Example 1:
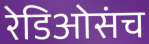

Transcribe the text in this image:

रेडिओसंच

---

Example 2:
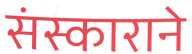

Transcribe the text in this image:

संस्काराने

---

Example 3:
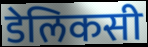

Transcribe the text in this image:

डेलिकसी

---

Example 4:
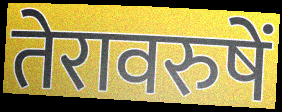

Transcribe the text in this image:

तेरावरुषें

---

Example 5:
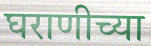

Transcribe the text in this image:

घराणीच्या